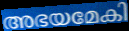
അഭയമേകി